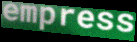
empress